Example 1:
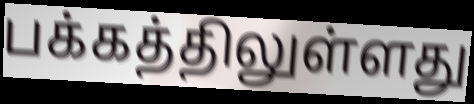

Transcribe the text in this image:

பக்கத்திலுள்ளது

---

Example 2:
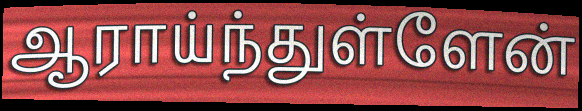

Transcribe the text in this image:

ஆராய்ந்துள்ளேன்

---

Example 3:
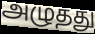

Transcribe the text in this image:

அழுதது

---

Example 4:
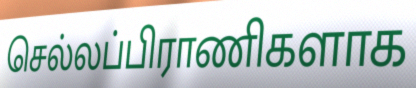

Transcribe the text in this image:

செல்லப்பிராணிகளாக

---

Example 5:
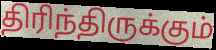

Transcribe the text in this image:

திரிந்திருக்கும்